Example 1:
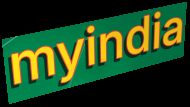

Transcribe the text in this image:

myindia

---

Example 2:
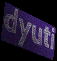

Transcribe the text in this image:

dyuti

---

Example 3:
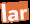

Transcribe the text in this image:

lar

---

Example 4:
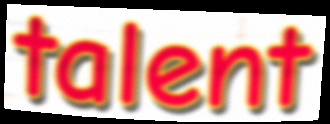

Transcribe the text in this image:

talent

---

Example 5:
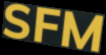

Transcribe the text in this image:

SFM